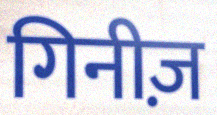
गिनीज़